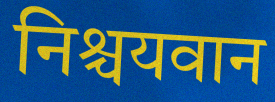
निश्चयवान